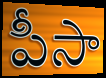
పీసా